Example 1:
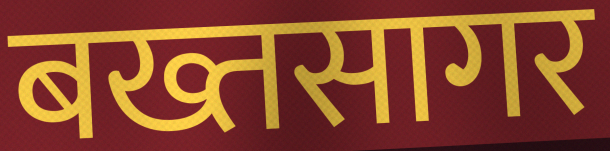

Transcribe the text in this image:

बख्तसागर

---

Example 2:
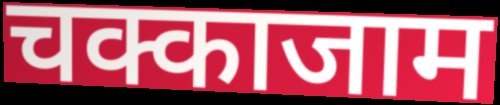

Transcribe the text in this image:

चक्काजाम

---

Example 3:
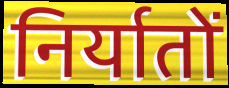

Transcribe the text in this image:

निर्यातों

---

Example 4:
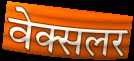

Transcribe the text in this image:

वेक्सलर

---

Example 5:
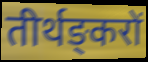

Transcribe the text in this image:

तीर्थङ्करों